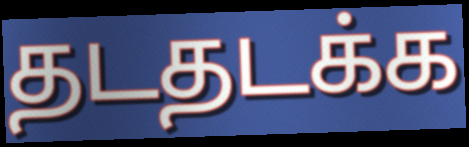
தடதடக்க